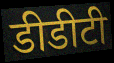
डीडीटी